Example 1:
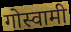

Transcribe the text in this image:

गोस्वामी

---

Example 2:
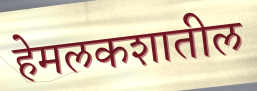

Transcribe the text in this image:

हेमलकशातील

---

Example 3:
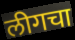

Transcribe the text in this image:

लीगचा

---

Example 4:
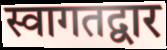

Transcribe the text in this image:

स्वागतद्वार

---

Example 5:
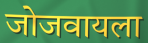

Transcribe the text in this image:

जोजवायला